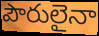
పౌరులైనా